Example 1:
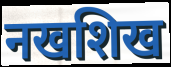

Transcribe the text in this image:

नखशिख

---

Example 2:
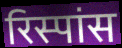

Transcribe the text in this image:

रिस्पांस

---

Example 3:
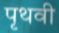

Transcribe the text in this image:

पृथवी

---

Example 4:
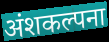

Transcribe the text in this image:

अंशकल्पना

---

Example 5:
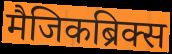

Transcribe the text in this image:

मैजिकब्रिक्स